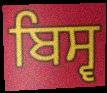
ਬਿਸ੍ਵ